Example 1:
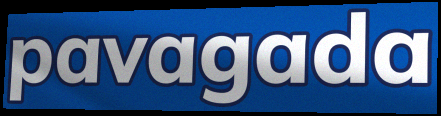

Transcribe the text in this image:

pavagada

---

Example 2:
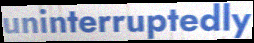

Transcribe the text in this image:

uninterruptedly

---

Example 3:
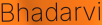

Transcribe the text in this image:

Bhadarvi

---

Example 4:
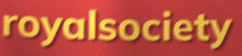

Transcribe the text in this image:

royalsociety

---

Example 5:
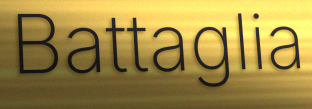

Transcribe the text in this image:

Battaglia